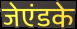
जेएंडके